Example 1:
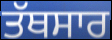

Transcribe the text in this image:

ਤੱਥਸਾਰ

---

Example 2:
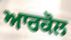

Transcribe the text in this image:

ਆਰਕੋਲ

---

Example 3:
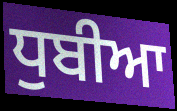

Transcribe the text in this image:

ਧੁਬੀਆ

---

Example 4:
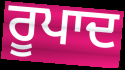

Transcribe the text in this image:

ਰੂਪਾਦ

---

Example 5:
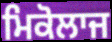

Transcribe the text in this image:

ਮਿਕੋਲਾਜ